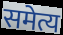
समेत्य